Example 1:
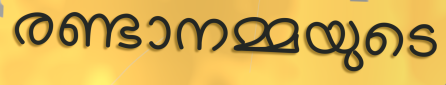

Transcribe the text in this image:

രണ്ടാനമ്മയുടെ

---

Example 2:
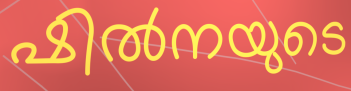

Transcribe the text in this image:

ഷിൽനയുടെ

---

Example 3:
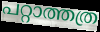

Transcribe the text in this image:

പറ്റാത്തത്ര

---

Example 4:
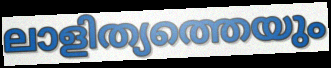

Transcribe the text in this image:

ലാളിത്യത്തെയും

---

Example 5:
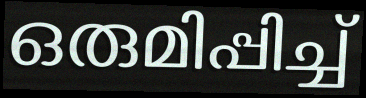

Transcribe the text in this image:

ഒരുമിപ്പിച്ച്